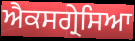
ਐਕਸਗ੍ਰੇਸਿਆ